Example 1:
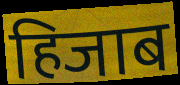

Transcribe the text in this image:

हिजाब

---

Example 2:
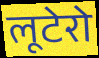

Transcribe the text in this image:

लूटेरो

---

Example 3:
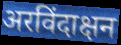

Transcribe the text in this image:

अरविंदाक्षन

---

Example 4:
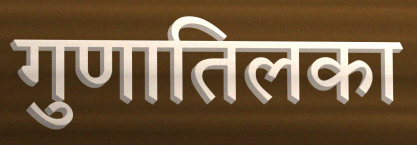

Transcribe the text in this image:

गुणातिलका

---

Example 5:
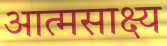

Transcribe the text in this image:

आत्मसाक्ष्य